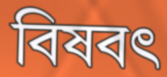
বিষবৎ